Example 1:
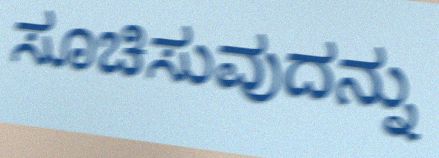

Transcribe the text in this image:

ಸೂಚಿಸುವುದನ್ನು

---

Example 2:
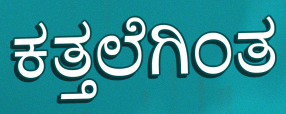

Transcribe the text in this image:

ಕತ್ತಲೆಗಿಂತ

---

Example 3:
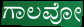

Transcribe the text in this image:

ಗಾಲವೋ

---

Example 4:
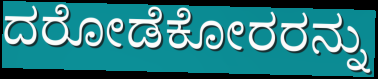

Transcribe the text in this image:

ದರೋಡೆಕೋರರನ್ನು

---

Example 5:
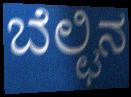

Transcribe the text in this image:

ಬೆಲ್ಟಿನ